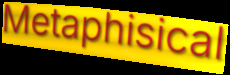
Metaphisical